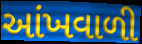
આંખવાળી